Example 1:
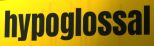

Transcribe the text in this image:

hypoglossal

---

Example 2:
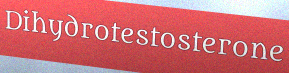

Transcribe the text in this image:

Dihydrotestosterone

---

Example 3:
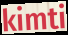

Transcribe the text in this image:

kimti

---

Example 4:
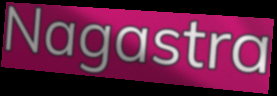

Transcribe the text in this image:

Nagastra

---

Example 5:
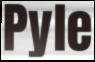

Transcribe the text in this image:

Pyle